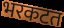
भरकटत